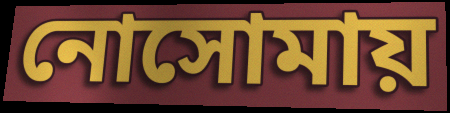
নোসোমায়